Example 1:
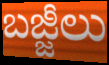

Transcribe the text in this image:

బజ్జీలు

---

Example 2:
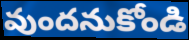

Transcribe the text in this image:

వుందనుకోండి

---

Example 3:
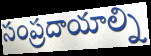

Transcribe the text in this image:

సంప్రదాయాల్ని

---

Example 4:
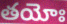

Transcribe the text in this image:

తయోః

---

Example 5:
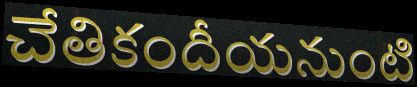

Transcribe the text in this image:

చేతికందీయనుంటి